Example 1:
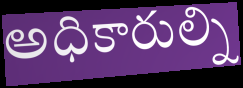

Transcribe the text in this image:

అధికారుల్ని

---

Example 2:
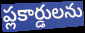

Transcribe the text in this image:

ప్లకార్డులను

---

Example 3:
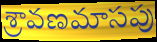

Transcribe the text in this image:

శ్రావణమాసపు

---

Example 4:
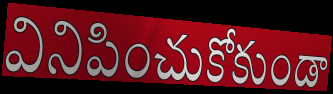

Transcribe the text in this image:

వినిపించుకోకుండా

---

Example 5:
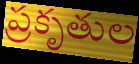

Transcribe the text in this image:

ప్రకృతుల